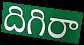
దిగిరా